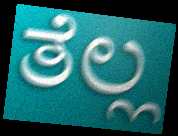
ತೆಲ್ಲ